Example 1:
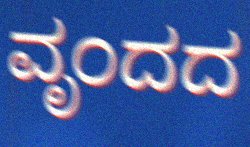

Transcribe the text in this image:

ವೃಂದದ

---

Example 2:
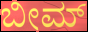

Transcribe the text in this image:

ಬೀಮ್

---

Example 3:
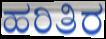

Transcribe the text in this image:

ಹರಿತಿರ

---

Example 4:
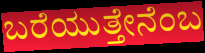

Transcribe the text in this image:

ಬರೆಯುತ್ತೇನೆಂಬ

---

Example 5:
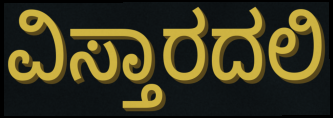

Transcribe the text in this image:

ವಿಸ್ತಾರದಲಿ